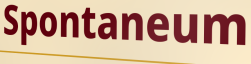
Spontaneum